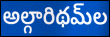
అల్గారిథమ్‌ల